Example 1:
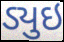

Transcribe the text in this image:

ડ્યુઇ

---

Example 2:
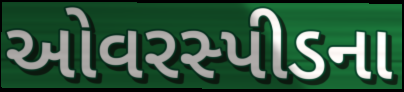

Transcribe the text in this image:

ઓવરસ્પીડના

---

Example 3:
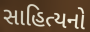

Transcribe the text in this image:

સાહિત્યનો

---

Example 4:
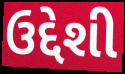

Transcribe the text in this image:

ઉદ્દેશી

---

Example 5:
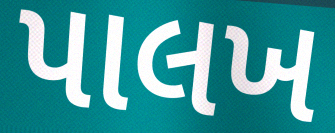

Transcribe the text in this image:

પાલખ